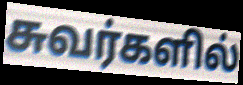
சுவர்களில்